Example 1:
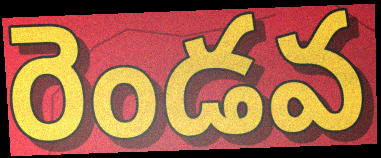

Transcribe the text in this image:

రెండవ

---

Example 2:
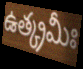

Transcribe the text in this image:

ఉత్క్రమీః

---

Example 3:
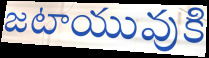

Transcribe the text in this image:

జటాయువుకి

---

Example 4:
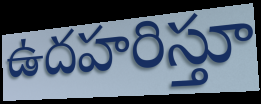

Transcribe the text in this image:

ఉదహరిస్తూ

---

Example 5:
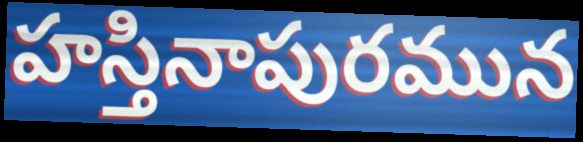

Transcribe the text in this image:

హస్తినాపురమున